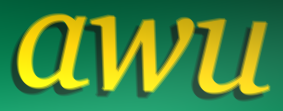
awu